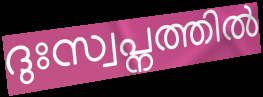
ദുഃസ്വപ്നത്തിൽ